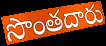
సొంతదారు